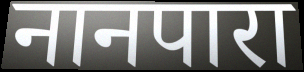
नानपारा